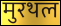
मुरथल